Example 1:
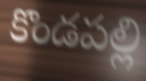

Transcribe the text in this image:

కొండపల్లి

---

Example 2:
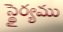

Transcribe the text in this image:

స్థైర్యము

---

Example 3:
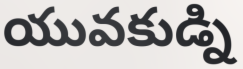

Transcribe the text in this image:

యువకుడ్ని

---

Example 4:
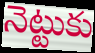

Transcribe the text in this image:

నెట్టుకు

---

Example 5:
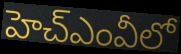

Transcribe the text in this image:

హెచ్ఎంవీలో